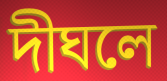
দীঘলে